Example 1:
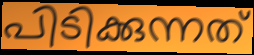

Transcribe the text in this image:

പിടിക്കുന്നത്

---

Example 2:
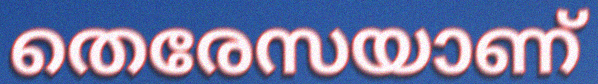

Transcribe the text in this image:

തെരേസയാണ്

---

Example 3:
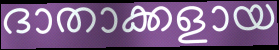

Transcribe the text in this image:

ദാതാക്കളായ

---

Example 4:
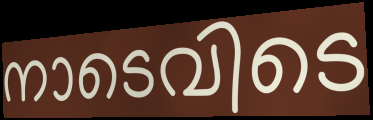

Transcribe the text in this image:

നാടെവിടെ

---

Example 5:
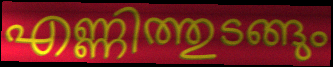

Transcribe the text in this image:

എണ്ണിത്തുടങ്ങും